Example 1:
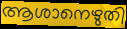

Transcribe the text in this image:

ആശാനെഴുതി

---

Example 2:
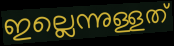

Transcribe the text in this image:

ഇല്ലെന്നുള്ളത്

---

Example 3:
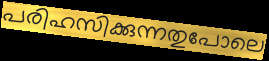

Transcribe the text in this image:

പരിഹസിക്കുന്നതുപോലെ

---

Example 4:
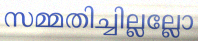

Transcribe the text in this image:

സമ്മതിച്ചില്ലല്ലോ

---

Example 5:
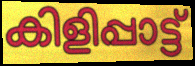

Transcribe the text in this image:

കിളിപ്പാട്ട്